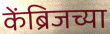
केंब्रिजच्या